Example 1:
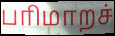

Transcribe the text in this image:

பரிமாறச்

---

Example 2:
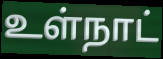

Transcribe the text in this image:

உள்நாட்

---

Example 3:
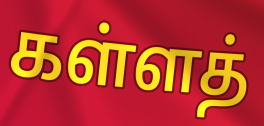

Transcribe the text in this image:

கள்ளத்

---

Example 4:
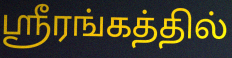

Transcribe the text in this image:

ஸ்ரீரங்கத்தில்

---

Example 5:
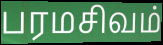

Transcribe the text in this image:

பரமசிவம்